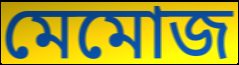
মেমোজ